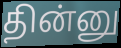
தின்னு